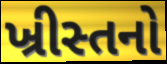
ખ્રીસ્તનો